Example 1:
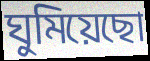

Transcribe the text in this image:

ঘুমিয়েছো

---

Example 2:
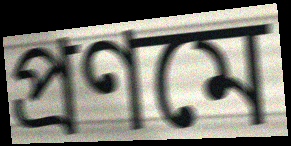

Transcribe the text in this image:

প্রণমে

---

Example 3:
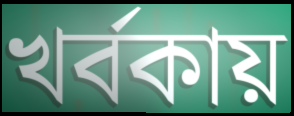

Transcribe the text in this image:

খর্বকায়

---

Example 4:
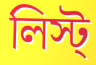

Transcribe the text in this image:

লিস্ট্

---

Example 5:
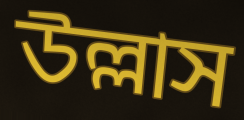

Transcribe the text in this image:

উল্লাস